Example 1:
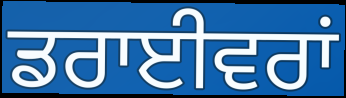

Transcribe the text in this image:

ਡਰਾਈਵਰਾਂ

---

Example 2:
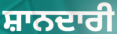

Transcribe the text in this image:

ਸ਼ਾਨਦਾਰੀ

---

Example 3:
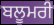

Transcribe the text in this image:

ਬਲੂਮਰੀ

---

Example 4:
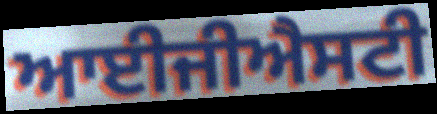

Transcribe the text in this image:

ਆਈਜੀਐਸਟੀ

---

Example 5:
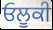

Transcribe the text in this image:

ਓਲੂਕੀ